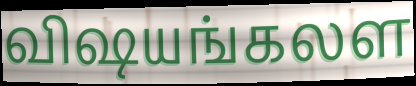
விஷயங்கலள